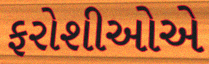
ફરોશીઓએ